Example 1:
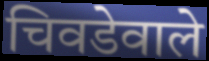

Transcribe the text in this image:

चिवडेवाले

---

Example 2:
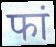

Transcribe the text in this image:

फां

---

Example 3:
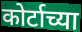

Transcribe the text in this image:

कोर्टाच्या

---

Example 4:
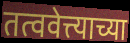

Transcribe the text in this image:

तत्ववेत्त्याच्या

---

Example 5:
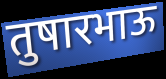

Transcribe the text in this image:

तुषारभाऊ